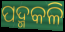
ପଦ୍ମକଳି